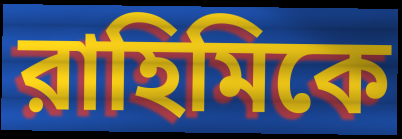
রাহিমিকে